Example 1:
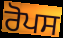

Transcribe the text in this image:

ਰੋਪਸ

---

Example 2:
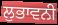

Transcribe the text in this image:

ਲੁਭਾਵਨੀ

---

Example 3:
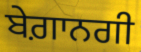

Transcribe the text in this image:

ਬੇਗ਼ਾਨਗੀ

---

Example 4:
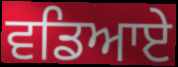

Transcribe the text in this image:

ਵਡਿਆਏ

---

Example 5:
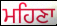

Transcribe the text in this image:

ਮਹਿਣਾ